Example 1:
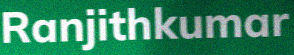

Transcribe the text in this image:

Ranjithkumar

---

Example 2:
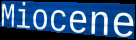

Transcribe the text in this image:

Miocene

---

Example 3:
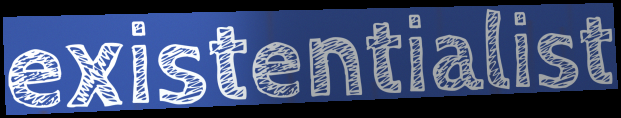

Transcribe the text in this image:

existentialist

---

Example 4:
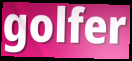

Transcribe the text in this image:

golfer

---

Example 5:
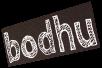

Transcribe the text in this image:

bodhu